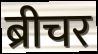
ब्रीचर